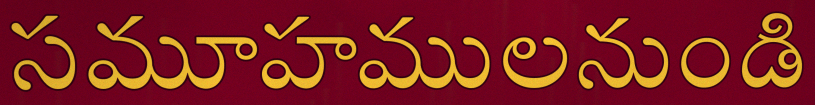
సమూహములనుండి